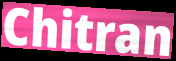
Chitran